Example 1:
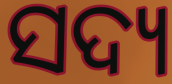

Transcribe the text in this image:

ସଦ୍ଯ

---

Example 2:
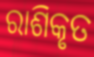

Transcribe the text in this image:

ରାଶିକୃତ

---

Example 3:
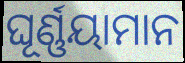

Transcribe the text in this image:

ଘୂର୍ଣ୍ଣୟାମାନ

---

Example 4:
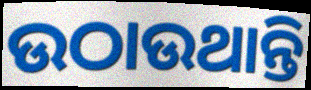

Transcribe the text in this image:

ଉଠାଉଥାନ୍ତି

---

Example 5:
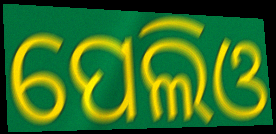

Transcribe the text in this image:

ପେଲିଓ